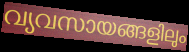
വ്യവസായങ്ങളിലും